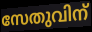
സേതുവിന്